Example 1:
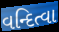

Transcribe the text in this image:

વન્દિત્વા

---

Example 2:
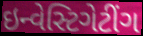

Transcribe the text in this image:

ઇન્વેસ્ટિગેટીંગ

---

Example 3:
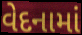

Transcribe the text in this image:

વેદનામાં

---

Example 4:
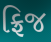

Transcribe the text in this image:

ફ્રિજ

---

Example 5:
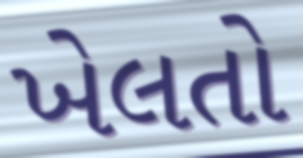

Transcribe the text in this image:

ખેલતો